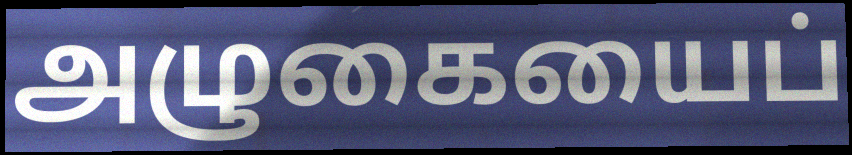
அழுகையைப்